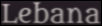
Lebana